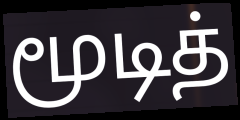
மூடித்